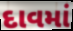
દાવમાં